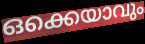
ഒക്കെയാവും